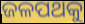
ଜଳପଥକୁ